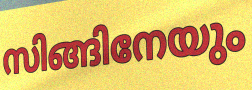
സിങ്ങിനേയും